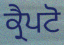
ਕ੍ਰੈਪਟੋ